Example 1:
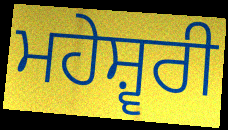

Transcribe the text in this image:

ਮਹੇਸ਼੍ਵਰੀ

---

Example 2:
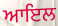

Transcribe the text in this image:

ਆਇਲ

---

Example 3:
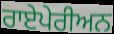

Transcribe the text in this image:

ਰਾਏਪੇਰੀਅਨ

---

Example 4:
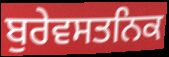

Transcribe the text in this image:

ਬੁਰੇਵਸਤਨਿਕ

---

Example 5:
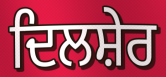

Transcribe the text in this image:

ਦਿਲਸ਼ੇਰ